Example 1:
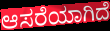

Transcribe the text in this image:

ಆಸರೆಯಾಗಿದೆ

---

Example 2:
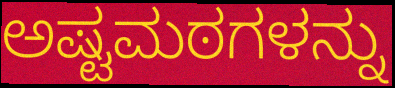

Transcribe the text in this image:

ಅಷ್ಟಮಠಗಳನ್ನು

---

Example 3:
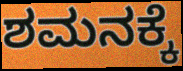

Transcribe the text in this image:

ಶಮನಕ್ಕೆ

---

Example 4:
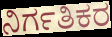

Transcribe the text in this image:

ನಿರ್ಗತಿಕರ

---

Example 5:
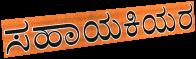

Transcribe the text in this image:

ಸಹಾಯಕಿಯರ